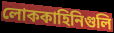
লোককাহিনিগুলি